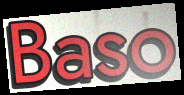
Baso